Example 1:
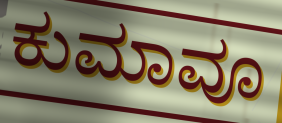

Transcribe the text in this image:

ಕುಮಾವೂ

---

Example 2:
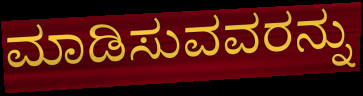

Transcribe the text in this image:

ಮಾಡಿಸುವವರನ್ನು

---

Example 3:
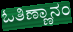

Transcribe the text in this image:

ಓತಿಣ್ಣಾನಂ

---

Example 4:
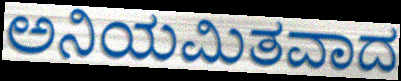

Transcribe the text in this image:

ಅನಿಯಮಿತವಾದ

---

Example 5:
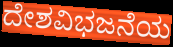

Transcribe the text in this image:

ದೇಶವಿಭಜನೆಯ